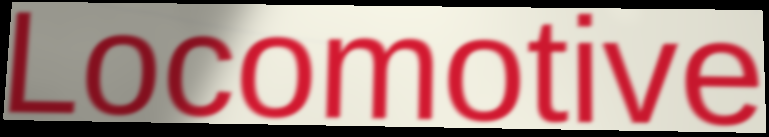
Locomotive